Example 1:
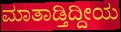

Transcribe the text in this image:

ಮಾತಾಡ್ತಿದ್ದೀಯ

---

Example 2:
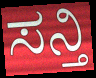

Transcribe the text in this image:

ಸನ್ತಿ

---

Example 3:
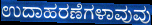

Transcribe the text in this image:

ಉದಾಹರಣೆಗಳಾವುವು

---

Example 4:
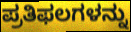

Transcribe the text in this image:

ಪ್ರತಿಫಲಗಳನ್ನು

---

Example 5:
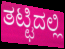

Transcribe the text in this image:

ತಟ್ಟಿದಲ್ಲಿ